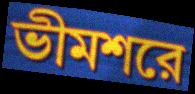
ভীমশরে